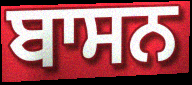
ਬਾਸਨ